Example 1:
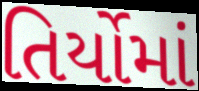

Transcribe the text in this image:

તિર્યોમાં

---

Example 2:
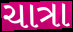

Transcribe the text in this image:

ચાત્રા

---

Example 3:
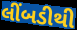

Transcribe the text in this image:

લીંબડીથી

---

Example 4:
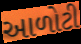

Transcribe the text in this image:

આળોટી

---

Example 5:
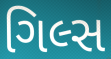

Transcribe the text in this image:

ગિલ્સ